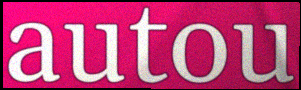
autou